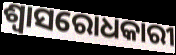
ଶ୍ୱାସରୋଧକାରୀ